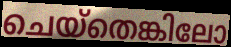
ചെയ്തെങ്കിലോ